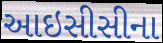
આઇસીસીના